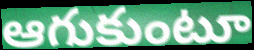
ఆగుకుంటూ